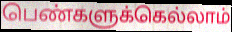
பெண்களுக்கெல்லாம்